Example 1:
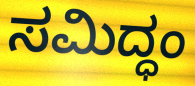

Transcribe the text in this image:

ಸಮಿದ್ಧಂ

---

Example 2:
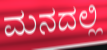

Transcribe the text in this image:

ಮನದಲ್ಲಿ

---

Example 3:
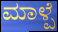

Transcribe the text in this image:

ಮಾಳ್ಪೆ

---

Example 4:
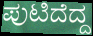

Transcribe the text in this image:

ಪುಟಿದೆದ್ದ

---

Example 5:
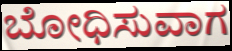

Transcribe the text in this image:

ಬೋಧಿಸುವಾಗ